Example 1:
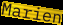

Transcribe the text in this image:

Marien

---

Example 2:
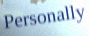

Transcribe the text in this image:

Personally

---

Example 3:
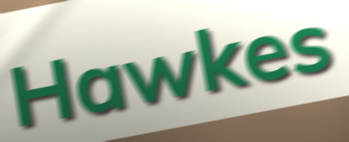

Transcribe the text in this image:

Hawkes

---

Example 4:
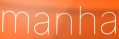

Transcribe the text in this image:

manha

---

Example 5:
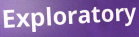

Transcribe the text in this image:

Exploratory